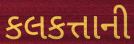
કલકત્તાની